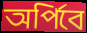
অর্পিবে